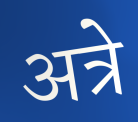
अत्रे